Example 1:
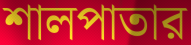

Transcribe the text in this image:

শালপাতার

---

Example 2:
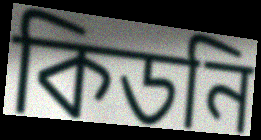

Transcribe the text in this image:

কিডনি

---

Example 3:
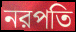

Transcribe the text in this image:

নরপতি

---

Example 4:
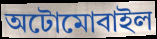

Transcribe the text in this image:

অটোমোবাইল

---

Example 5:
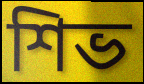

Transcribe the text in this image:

শিভ